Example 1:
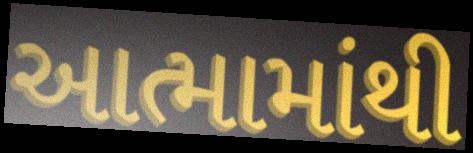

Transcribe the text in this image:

આત્મામાંથી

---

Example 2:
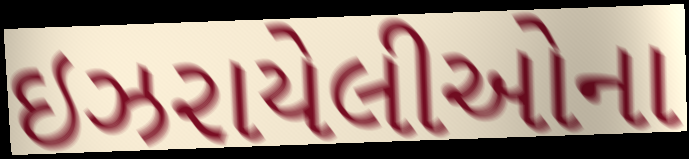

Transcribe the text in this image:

ઇઝરાયેલીઓના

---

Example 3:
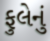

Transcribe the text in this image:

ફુલેનું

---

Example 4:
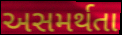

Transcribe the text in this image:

અસમર્થતા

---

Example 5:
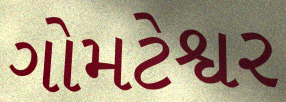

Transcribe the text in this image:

ગોમટેશ્વર